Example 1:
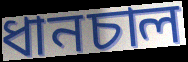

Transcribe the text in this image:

ধানচাল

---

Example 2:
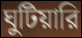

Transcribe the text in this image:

ঘুটিয়ারি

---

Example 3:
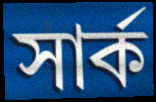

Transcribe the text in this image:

সার্ক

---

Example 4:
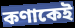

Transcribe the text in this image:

কণাকেই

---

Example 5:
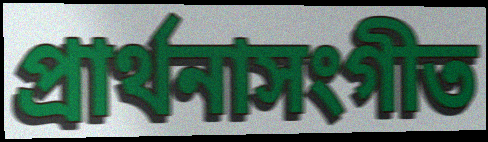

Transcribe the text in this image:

প্রার্থনাসংগীত